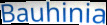
Bauhinia